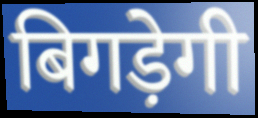
बिगड़ेगी